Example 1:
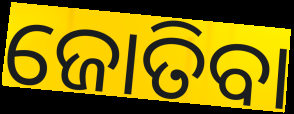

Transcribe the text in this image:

ଜୋତିବା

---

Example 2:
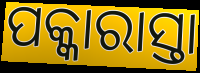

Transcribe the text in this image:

ପକ୍କାରାସ୍ତା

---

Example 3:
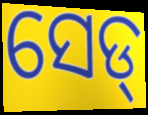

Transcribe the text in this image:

ସେଡ୍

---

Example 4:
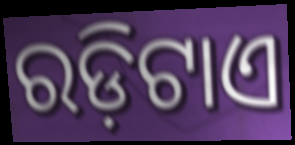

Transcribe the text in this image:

ରଡ଼ିଟାଏ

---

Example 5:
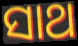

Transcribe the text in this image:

ସାଥ